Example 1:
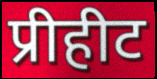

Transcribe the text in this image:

प्रीहीट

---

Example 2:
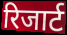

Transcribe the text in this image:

रिजार्ट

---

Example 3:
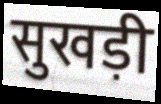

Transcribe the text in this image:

सुखड़ी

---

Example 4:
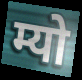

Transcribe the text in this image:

म्यो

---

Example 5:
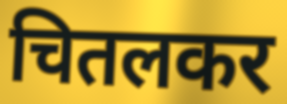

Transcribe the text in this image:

चितलकर